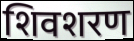
शिवशरण